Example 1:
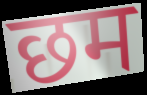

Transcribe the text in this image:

छम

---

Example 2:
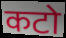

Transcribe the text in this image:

कटो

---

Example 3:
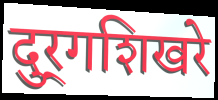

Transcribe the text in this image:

दुर्गशिखरे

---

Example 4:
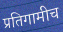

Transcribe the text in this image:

प्रतिगामीच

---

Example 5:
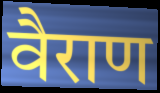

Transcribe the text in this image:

वैराण